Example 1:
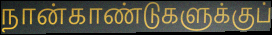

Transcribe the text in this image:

நான்காண்டுகளுக்குப்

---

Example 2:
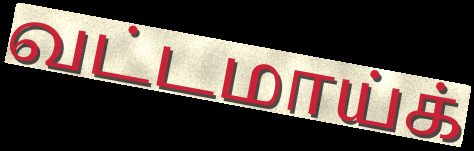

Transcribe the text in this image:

வட்டமாய்க்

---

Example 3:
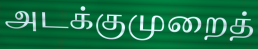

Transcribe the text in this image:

அடக்குமுறைத்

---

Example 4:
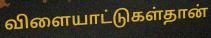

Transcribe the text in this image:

விளையாட்டுகள்தான்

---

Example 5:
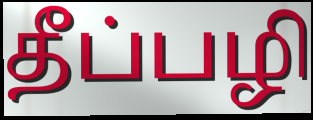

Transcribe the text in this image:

தீப்பழி